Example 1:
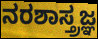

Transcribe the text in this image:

ನರಶಾಸ್ತ್ರಜ್ಞ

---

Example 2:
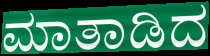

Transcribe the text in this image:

ಮಾತಾಡಿದ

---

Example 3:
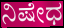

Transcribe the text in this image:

ನಿಷೇಧ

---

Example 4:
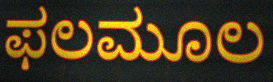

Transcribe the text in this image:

ಫಲಮೂಲ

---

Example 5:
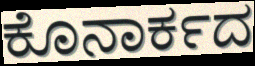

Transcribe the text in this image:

ಕೊನಾರ್ಕದ